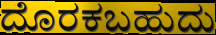
ದೊರಕಬಹುದು